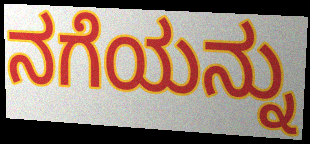
ನಗೆಯನ್ನು